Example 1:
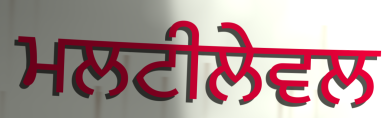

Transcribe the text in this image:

ਮਲਟੀਲੇਵਲ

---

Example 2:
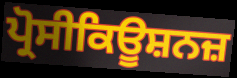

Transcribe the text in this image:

ਪ੍ਰੋਸੀਕਿਊਸ਼ਨਜ਼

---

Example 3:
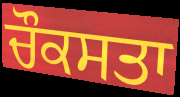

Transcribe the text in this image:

ਚੌਕਸਤਾ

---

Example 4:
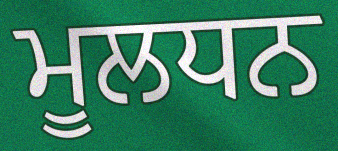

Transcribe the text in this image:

ਮੂਲਧਨ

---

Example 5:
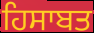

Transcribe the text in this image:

ਹਿਸਾਬਤ